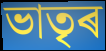
ভাতৃৰ